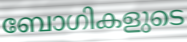
ബോഗികളുടെ